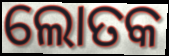
ଲୋତକ